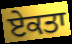
ਏਕਤਾ